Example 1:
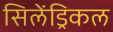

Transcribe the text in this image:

सिलेंड्रिकल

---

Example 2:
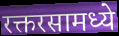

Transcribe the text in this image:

रक्तरसामध्ये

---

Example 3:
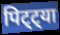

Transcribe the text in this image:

पिट्ट्या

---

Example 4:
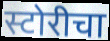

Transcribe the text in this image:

स्टोरीचा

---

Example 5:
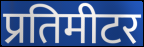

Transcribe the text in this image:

प्रतिमीटर